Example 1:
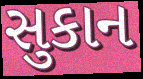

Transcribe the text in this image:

સુકાન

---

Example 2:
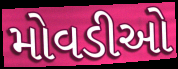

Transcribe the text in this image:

મોવડીઓ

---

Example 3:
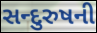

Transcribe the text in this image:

સન્દુરુષની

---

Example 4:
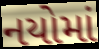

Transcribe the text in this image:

નયોમાં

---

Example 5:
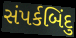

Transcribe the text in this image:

સંપર્કબિંદુ